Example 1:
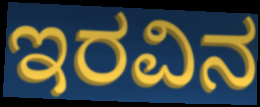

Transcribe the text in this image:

ಇರವಿನ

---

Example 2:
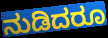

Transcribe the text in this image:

ನುಡಿದರೂ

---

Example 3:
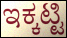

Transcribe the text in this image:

ಇಕ್ಕಟ್ಟಿ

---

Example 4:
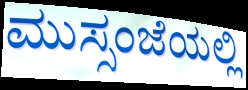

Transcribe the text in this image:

ಮುಸ್ಸಂಜೆಯಲ್ಲಿ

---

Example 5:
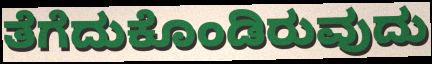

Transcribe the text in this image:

ತೆಗೆದುಕೊಂಡಿರುವುದು